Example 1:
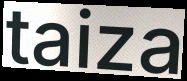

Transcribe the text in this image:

taiza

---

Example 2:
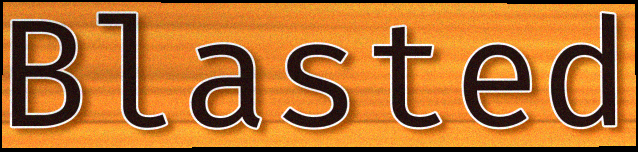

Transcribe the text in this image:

Blasted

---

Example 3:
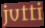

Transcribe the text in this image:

jutti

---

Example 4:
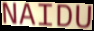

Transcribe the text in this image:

NAIDU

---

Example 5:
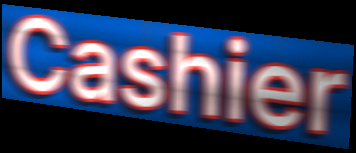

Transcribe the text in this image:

Cashier